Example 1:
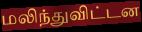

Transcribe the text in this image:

மலிந்துவிட்டன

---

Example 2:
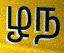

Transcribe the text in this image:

ழந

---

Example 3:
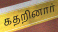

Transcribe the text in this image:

கதறினார்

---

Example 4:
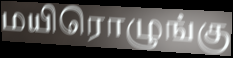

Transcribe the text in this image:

மயிரொழுங்கு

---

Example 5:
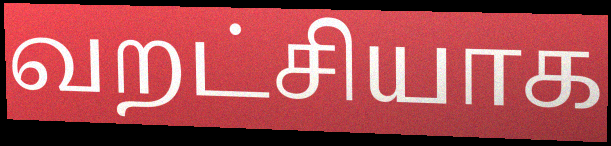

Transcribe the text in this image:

வறட்சியாக